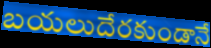
బయలుదేరకుండానే